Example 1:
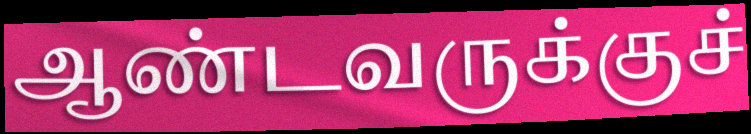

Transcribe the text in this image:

ஆண்டவருக்குச்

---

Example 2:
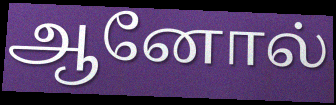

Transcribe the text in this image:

ஆனோல்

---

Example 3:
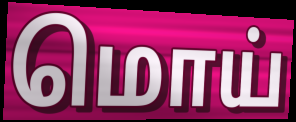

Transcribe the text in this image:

மொய்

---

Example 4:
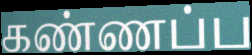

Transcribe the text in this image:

கண்ணப்ப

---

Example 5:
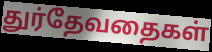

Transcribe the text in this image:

துர்தேவதைகள்